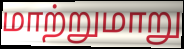
மாற்றுமாறு